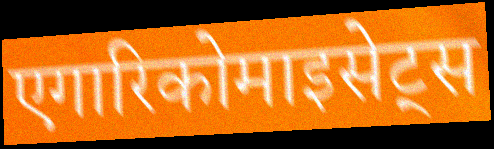
एगारिकोमाइसेट्स